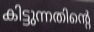
കിട്ടുന്നതിന്റെ